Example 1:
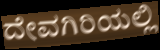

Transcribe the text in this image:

ದೇವಗಿರಿಯಲ್ಲಿ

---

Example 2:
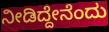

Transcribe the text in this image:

ನೀಡಿದ್ದೇನೆಂದು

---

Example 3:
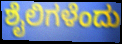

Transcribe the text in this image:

ಶೈಲಿಗಳೆಂದು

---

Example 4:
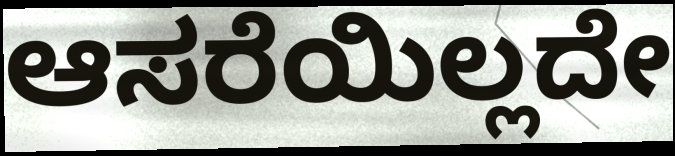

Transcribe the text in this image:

ಆಸರೆಯಿಲ್ಲದೇ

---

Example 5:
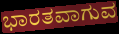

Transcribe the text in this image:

ಭಾರತವಾಗುವ